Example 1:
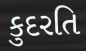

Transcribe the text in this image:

કુદરતિ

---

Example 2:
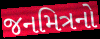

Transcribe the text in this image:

જનમિત્રનો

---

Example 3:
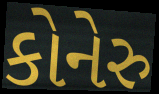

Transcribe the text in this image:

કોનેરુ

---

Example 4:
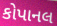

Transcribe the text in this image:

કોપાનલ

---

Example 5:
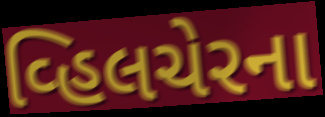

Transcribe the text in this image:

વ્હિલચેરના